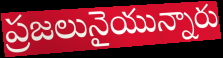
ప్రజలునైయున్నారు